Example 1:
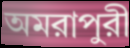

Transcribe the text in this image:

অমরাপুরী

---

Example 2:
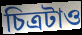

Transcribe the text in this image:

চিত্রটাও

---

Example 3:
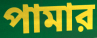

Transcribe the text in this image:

পামার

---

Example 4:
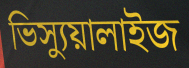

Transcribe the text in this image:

ভিস্যুয়ালাইজ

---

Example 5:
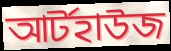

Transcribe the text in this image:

আর্টহাউজ